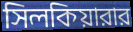
সিলকিয়ারার